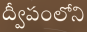
ద్వీపంలోని